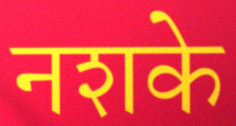
नशके